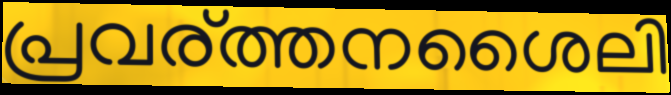
പ്രവര്ത്തനശൈലി